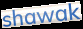
shawak